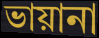
ভায়ানা